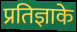
प्रतिज्ञाके